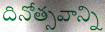
దినోత్సవాన్ని